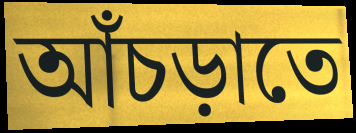
আঁচড়াতে